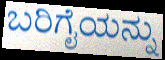
ಬರಿಗೈಯನ್ನು